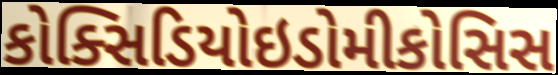
કોક્સિડિયોઇડોમીકોસિસ